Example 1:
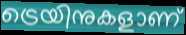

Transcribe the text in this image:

ട്രെയിനുകളാണ്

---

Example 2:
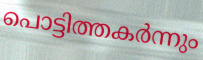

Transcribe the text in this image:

പൊട്ടിത്തകർന്നും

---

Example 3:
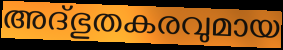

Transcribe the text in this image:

അദ്ഭുതകരവുമായ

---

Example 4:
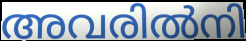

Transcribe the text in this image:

അവരിൽനി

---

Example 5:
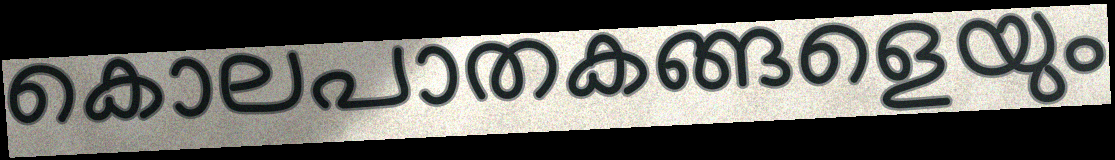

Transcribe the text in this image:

കൊലപാതകങ്ങളെയും